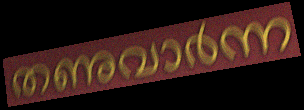
തണുവാർന്ന